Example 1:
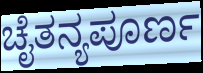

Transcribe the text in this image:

ಚೈತನ್ಯಪೂರ್ಣ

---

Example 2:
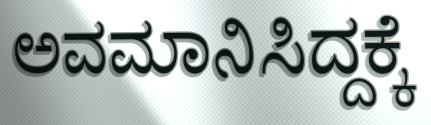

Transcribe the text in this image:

ಅವಮಾನಿಸಿದ್ದಕ್ಕೆ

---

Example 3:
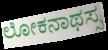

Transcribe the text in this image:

ಲೋಕನಾಥಸ್ಸ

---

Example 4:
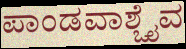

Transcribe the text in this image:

ಪಾಂಡವಾಶ್ಚೈವ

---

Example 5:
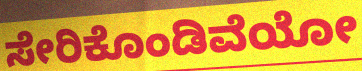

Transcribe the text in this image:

ಸೇರಿಕೊಂಡಿವೆಯೋ